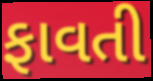
ફાવતી